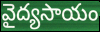
వైద్యసాయం